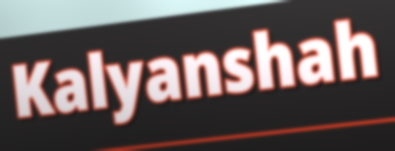
Kalyanshah